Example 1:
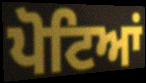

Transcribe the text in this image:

ਪੋਟਿਆਂ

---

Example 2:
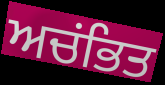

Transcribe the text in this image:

ਅਚਂਭਿਤ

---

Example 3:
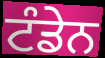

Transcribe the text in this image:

ਟੰਡੇਨ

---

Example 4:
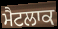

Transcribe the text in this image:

ਮੈਟਲਾਕ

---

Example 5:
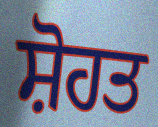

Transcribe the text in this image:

ਸ਼ੋਹਤ